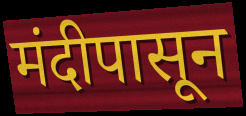
मंदीपासून